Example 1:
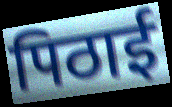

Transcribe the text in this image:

पिठाई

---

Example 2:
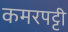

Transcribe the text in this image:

कमरपट्टी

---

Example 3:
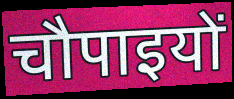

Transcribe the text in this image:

चौपाइयों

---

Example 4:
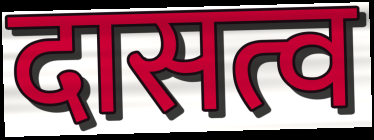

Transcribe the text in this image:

दासत्व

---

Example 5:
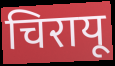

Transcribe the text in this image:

चिरायू